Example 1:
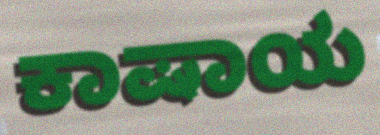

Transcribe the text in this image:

ಕಾಷಾಯ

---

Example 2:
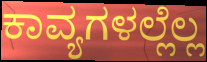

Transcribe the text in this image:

ಕಾವ್ಯಗಳಲ್ಲೆಲ್ಲ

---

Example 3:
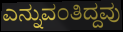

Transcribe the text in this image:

ಎನ್ನುವಂತಿದ್ದವು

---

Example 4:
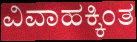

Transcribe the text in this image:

ವಿವಾಹಕ್ಕಿಂತ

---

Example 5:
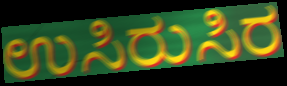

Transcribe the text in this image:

ಉಸಿರುಸಿರ